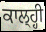
ਕਾਲ੍ਹ੍ਹੀ